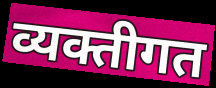
व्यक्तीगत